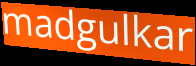
madgulkar